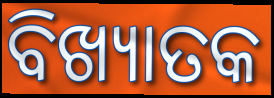
ବିଖ୍ୟାତକ